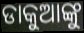
ଡାକୁଆଙ୍କୁ